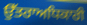
ਉੱਤਰਾਅਧਿਕਾਰੀ